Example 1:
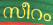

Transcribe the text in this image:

സീറം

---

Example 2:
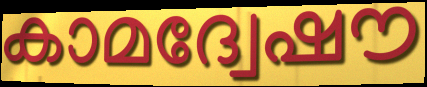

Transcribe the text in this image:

കാമദ്വേഷൗ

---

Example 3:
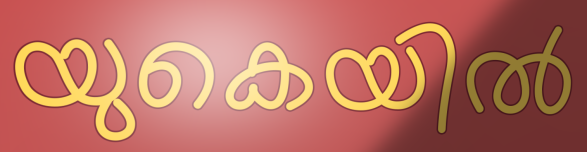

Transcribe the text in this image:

യുകെയിൽ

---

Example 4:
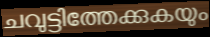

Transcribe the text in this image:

ചവുട്ടിത്തേക്കുകയും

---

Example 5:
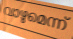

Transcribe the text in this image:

വാഴുമെന്ന്